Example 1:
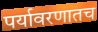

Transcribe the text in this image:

पर्यावरणातच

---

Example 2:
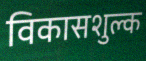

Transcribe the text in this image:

विकासशुल्क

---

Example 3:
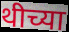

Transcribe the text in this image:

थीच्या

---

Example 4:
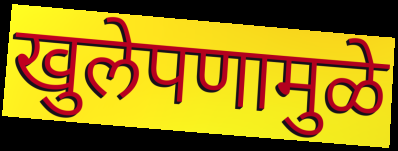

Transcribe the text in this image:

खुलेपणामुळे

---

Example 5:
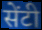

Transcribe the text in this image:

सेंटी